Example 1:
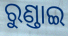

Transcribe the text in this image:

ରୁଣ୍ଡାଇ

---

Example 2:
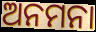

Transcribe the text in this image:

ଅନମନା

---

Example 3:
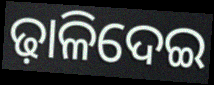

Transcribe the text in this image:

ଢ଼ାଳିଦେଇ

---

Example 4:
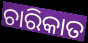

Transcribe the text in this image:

ଚାରିକାତ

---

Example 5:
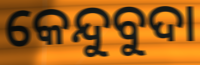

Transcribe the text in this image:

କେନ୍ଦୁବୁଦା